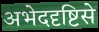
अभेददृष्टिसे